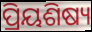
ପ୍ରିୟଶିଷ୍ୟ